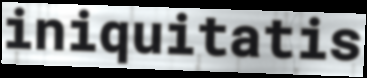
iniquitatis